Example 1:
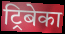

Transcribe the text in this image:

ट्रिबेका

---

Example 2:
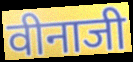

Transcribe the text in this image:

वीनाजी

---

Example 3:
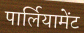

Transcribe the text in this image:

पार्लियामेंट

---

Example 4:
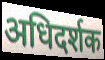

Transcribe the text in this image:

अधिदर्शक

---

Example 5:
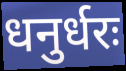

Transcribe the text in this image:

धनुर्धरः